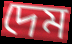
দেম